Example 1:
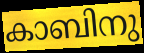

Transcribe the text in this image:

കാബിനു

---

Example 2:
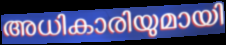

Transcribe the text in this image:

അധികാരിയുമായി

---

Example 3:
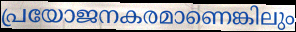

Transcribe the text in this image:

പ്രയോജനകരമാണെങ്കിലും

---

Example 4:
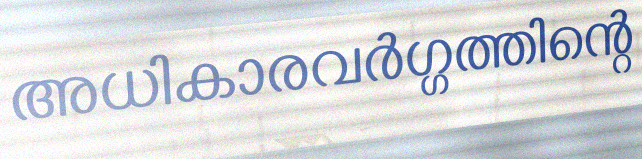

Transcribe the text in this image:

അധികാരവർഗ്ഗത്തിന്റെ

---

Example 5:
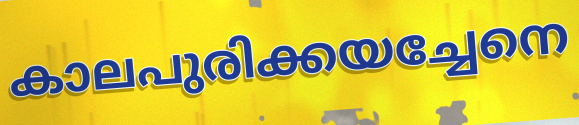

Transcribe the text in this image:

കാലപുരിക്കയച്ചേനെ